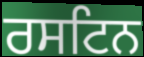
ਰਸਟਿਨ